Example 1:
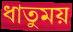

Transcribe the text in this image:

ধাতুময়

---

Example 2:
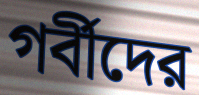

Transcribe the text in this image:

গর্বীদের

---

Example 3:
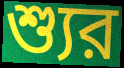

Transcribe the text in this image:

শ্যুর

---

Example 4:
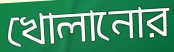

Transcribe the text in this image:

খোলানোর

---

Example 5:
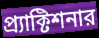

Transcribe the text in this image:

প্র্যাক্টিশনার